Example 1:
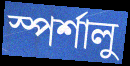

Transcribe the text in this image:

স্পর্শালু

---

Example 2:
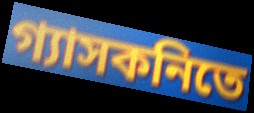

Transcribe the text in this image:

গ্যাসকনিতে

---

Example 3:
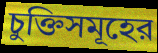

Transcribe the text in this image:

চুক্তিসমূহের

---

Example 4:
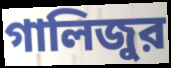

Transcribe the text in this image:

গালিজুর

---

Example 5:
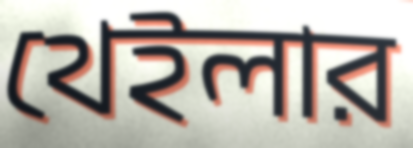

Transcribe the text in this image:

থেইলার